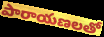
పారాయణలతో